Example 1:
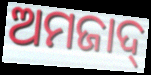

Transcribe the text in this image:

ଅମଜାଦ୍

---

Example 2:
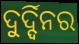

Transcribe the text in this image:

ଦୁର୍ଦ୍ଦିନର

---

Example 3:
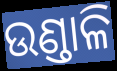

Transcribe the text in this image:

ଉଣ୍ଡାଳି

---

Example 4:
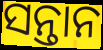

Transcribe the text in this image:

ସନ୍ତାନ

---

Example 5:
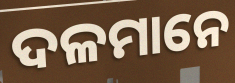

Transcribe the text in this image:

ଦଳମାନେ